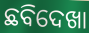
ଛବିଦେଖା